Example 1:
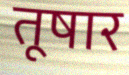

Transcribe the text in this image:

तूषार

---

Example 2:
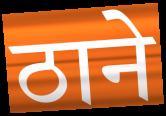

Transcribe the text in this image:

ठाने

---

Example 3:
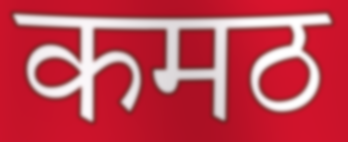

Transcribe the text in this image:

कमठ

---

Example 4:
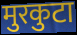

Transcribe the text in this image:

मुरकुटा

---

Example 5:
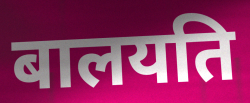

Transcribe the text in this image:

बालयति